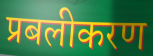
प्रबलीकरण